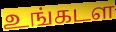
உங்கடள